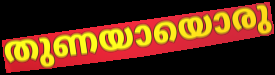
തുണയായൊരു